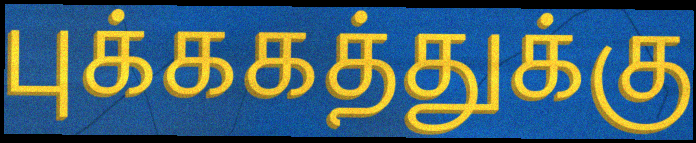
புக்ககத்துக்கு